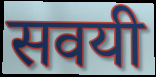
सवयी